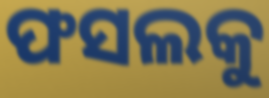
ଫସଲକୁ